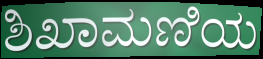
ಶಿಖಾಮಣಿಯ